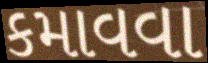
કમાવવા